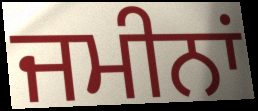
ਜਮੀਨਾਂ